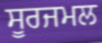
ਸੂਰਜਮਲ